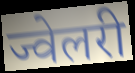
ज्वेलरी